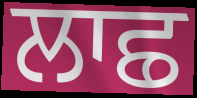
ਲਾਛ